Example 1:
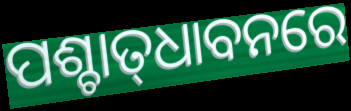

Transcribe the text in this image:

ପଶ୍ଚାତ୍‍ଧାବନରେ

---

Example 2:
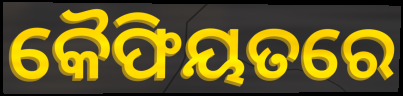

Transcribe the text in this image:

କୈଫିୟତରେ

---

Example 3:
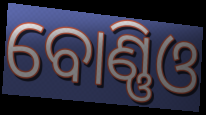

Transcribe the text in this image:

ବୋଣ୍ଣିଓ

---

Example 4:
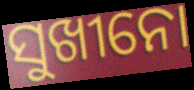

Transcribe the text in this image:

ସୁଖୀନୋ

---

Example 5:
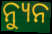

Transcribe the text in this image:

ନ୍ୟୁନ